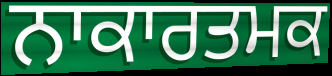
ਨਾਕਾਰਤਮਕ